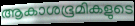
ആകാശഭൂമികളുടെ